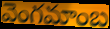
వెంగమాంబ